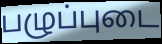
பழுப்புடை